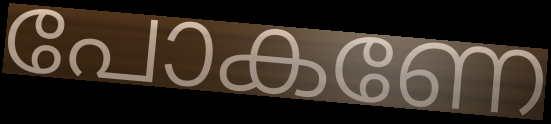
പോകണേ